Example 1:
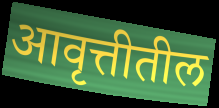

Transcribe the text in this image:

आवृत्तीतील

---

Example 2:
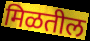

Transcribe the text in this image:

मिळतील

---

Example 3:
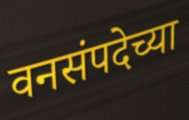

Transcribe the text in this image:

वनसंपदेच्या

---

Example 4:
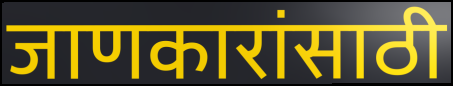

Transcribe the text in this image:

जाणकारांसाठी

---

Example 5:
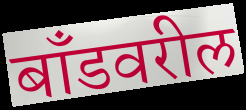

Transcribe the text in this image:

बॉंडवरील